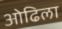
ओढिला